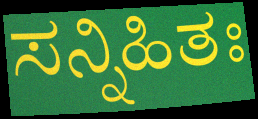
ಸನ್ನಿಹಿತಃ